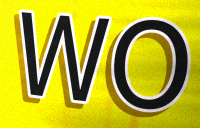
WO